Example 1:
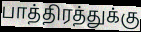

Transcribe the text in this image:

பாத்திரத்துக்கு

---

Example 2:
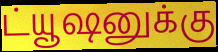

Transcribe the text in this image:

ட்யூஷனுக்கு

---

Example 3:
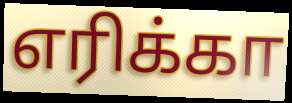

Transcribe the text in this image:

எரிக்கா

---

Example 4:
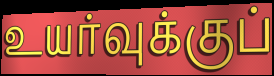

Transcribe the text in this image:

உயர்வுக்குப்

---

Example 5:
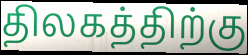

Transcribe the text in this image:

திலகத்திற்கு